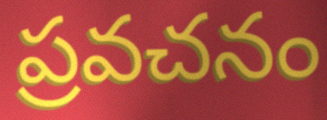
ప్రవచనం